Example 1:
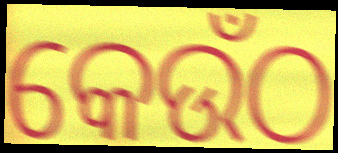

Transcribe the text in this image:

କେଉଁଠ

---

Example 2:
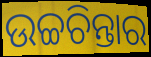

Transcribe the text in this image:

ଉଚ୍ଚଚିନ୍ତାର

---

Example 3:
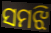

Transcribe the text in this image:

ସମଝି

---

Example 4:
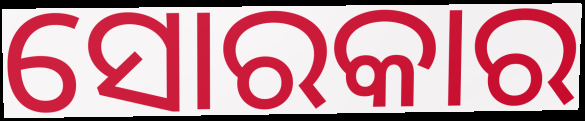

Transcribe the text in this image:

ସୋରକାର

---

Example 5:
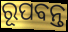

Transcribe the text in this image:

ରୂପବନ୍ତ